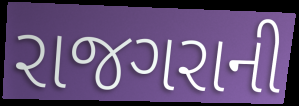
રાજગરાની